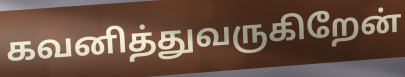
கவனித்துவருகிறேன்